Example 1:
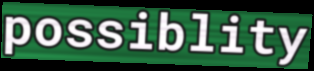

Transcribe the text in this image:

possiblity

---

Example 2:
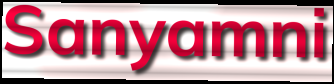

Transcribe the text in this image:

Sanyamni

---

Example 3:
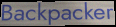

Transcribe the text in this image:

Backpacker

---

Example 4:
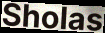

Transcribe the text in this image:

Sholas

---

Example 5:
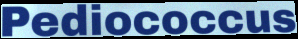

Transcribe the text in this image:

Pediococcus